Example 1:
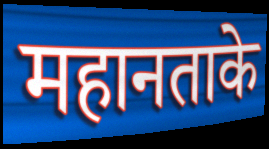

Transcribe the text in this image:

महानताके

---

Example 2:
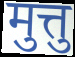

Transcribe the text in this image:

मुत्तु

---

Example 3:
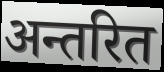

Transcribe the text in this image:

अन्तरित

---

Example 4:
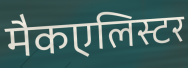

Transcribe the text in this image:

मैकएलिस्टर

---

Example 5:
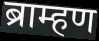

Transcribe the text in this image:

ब्राम्हण